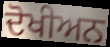
ਦੋਖੀਅਨ